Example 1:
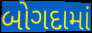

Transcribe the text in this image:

બોગદામાં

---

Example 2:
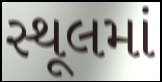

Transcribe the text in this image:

સ્થૂલમાં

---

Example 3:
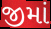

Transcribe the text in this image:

જીમાં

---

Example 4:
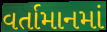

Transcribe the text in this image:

વર્તામાનમાં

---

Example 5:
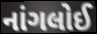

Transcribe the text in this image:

નાંગલોઈ